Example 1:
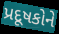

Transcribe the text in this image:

પ્રદૂષકોને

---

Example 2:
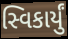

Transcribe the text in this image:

સ્વિકાર્યું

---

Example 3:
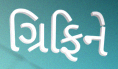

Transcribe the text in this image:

ગ્રિફિને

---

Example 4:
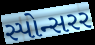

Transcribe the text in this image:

સ્પોન્સરર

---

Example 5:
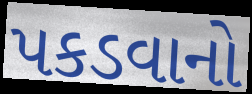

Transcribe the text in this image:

પકડવાનો